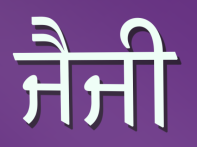
ਜੈਜੀ